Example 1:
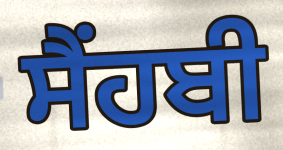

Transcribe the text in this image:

ਸੈਂਹਬੀ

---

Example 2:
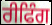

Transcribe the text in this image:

ਰੀਫਿੰਗ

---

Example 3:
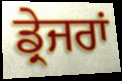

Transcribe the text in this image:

ਡ੍ਰੇਜਰਾਂ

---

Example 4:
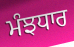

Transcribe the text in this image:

ਮੰਝਧਾਰ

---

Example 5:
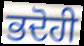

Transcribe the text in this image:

ਭਦੋਹੀ